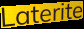
Laterite